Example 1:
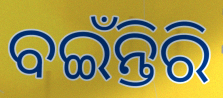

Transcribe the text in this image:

ବଇଁନ୍ତିରି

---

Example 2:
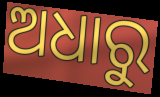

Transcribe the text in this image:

ଅଧାରୁ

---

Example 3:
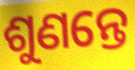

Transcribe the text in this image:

ଶୁଣନ୍ତେ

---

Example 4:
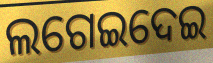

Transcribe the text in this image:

ଲଗେଇଦେଇ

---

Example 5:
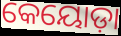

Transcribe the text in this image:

କେୟୋଡ଼ା